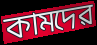
কামদেৱ